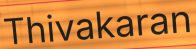
Thivakaran